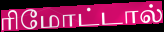
ரிமோட்டால்